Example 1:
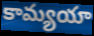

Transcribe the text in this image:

కామ్యయా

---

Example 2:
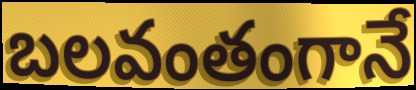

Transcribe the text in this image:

బలవంతంగానే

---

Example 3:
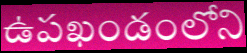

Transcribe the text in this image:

ఉపఖండంలోని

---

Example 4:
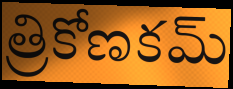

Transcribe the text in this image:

త్రికోణకమ్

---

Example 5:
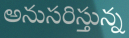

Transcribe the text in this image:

అనుసరిస్తున్న